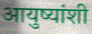
आयुष्यांशी